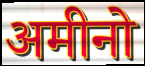
अमीनो